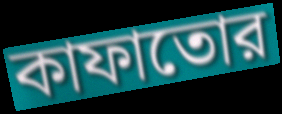
কাফাতোর